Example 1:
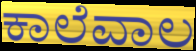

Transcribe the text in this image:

ಕಾಲೆವಾಲ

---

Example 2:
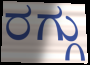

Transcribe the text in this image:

ರಗ್ಗು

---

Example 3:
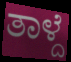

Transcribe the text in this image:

ತಾಳ್ದೆ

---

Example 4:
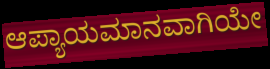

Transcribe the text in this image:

ಆಪ್ಯಾಯಮಾನವಾಗಿಯೇ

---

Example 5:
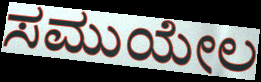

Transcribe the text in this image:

ಸಮುಯೇಲ